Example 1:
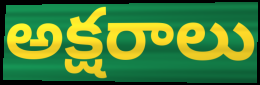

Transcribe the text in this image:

అక్షరాలు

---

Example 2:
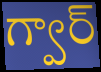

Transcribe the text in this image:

గ్వార్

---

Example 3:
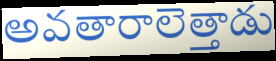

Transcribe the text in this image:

అవతారాలెత్తాడు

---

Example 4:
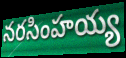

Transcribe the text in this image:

నరసింహయ్య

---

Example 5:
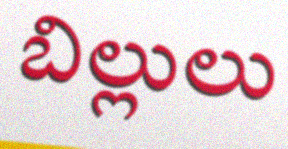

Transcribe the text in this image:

బిల్లులు